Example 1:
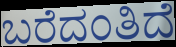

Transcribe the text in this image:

ಬರೆದಂತಿದೆ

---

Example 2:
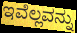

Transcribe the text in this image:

ಇವೆಲ್ಲವನ್ನು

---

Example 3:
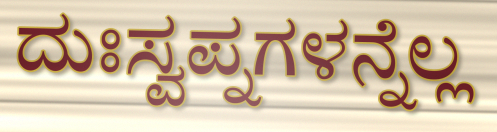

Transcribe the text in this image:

ದುಃಸ್ವಪ್ನಗಳನ್ನೆಲ್ಲ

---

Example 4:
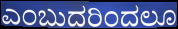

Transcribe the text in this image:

ಎಂಬುದರಿಂದಲೂ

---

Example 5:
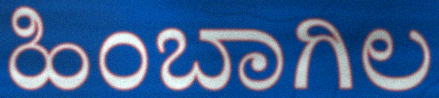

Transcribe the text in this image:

ಹಿಂಬಾಗಿಲ